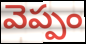
వెప్పం